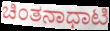
ಚಿಂತನಾಧಾಟಿ